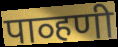
पाव्हणी